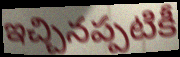
ఇచ్చినప్పటికీ